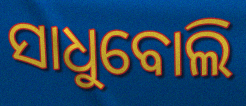
ସାଧୁବୋଲି